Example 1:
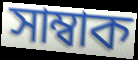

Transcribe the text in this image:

সাম্বাক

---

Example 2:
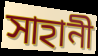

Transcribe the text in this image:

সাহানী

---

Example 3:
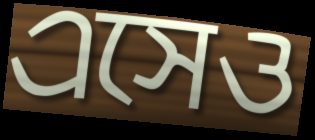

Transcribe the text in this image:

এসেও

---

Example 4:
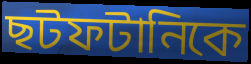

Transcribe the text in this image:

ছটফটানিকে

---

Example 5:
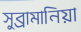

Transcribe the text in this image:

সুব্রামানিয়া